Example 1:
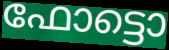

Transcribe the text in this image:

ഫോട്ടൊ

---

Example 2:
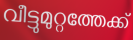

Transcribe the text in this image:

വീട്ടുമുറ്റത്തേക്ക്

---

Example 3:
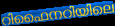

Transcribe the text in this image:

റിഫൈനറിയിലെ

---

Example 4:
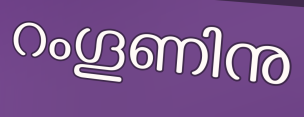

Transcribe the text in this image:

റംഗൂണിനു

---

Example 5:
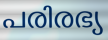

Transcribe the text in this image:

പരിരഭ്യ